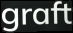
graft